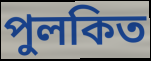
পুলকিত